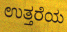
ಉತ್ತರೆಯ